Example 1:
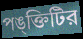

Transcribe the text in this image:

পঙ্‌ক্তিটির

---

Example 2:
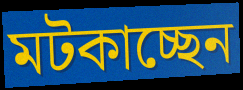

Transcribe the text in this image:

মটকাচ্ছেন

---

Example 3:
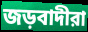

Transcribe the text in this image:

জড়বাদীরা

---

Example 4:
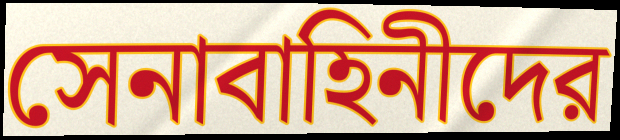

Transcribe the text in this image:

সেনাবাহিনীদের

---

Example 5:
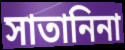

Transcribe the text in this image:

সাতানিনা